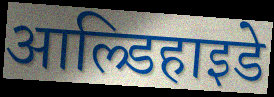
आल्डिहाइडे